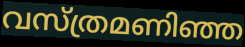
വസ്ത്രമണിഞ്ഞ